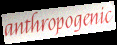
anthropogenic